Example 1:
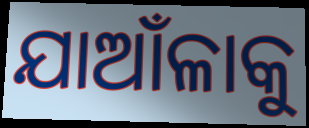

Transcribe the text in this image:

ଯାଆଁଳାକୁ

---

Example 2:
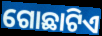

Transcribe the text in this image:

ଗୋଛାଟିଏ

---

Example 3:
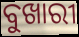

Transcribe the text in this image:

ବୁଖାରୀ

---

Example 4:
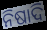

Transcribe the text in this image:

ନିଷାଦି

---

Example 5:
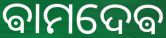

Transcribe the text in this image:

ଵାମଦେଵ